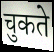
चुकते